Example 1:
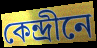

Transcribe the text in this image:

কেন্দ্রীনে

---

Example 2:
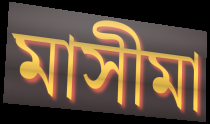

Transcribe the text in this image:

মাসীমা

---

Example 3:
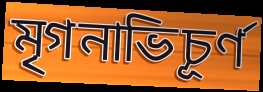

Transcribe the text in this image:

মৃগনাভিচূর্ণ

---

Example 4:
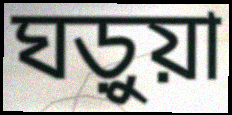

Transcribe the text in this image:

ঘড়ুয়া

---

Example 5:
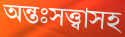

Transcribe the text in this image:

অন্তঃসত্ত্বাসহ